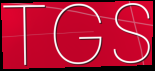
TGS